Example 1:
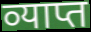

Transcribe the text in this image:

व्‍याप्‍त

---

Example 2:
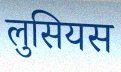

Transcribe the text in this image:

लुसियस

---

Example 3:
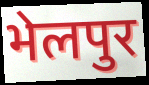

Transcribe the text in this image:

भेलपुर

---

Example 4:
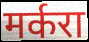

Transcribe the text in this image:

मर्करा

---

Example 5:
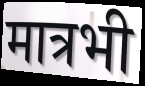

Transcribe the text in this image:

मात्रभी